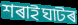
শৰাইঘাটৰ